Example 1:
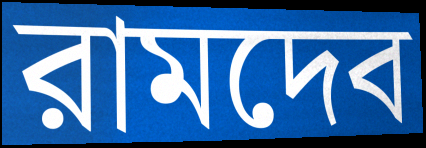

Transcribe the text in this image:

রামদেব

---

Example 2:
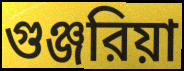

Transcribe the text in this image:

গুঞ্জরিয়া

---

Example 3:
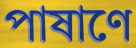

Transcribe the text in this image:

পাষাণে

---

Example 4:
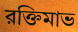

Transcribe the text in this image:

রক্তিমাভ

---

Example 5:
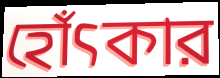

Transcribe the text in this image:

হোঁৎকার